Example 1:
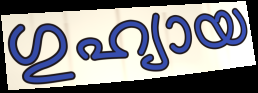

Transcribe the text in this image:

ഗുഹ്യായ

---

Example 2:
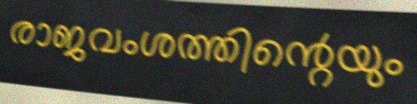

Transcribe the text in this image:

രാജവംശത്തിന്റെയും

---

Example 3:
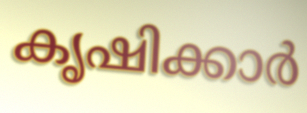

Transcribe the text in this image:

കൃഷിക്കാർ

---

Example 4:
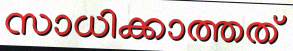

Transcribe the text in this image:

സാധിക്കാത്തത്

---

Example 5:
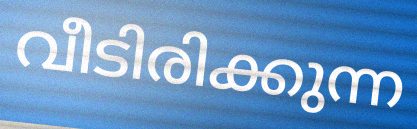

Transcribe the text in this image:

വീടിരിക്കുന്ന